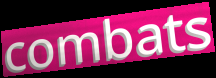
combats